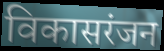
विकासरंजन